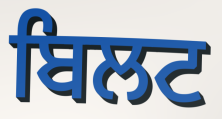
ਬਿਲਟ